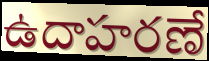
ఉదాహరణే